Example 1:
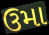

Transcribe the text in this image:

ઉમા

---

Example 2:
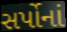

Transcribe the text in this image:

સર્પોનાં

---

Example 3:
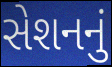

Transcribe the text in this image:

સેશનનું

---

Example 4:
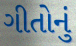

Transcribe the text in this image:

ગીતોનું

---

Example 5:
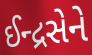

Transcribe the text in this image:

ઈન્દ્રસેને